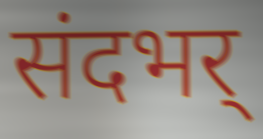
संदभर्